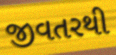
જીવતરથી